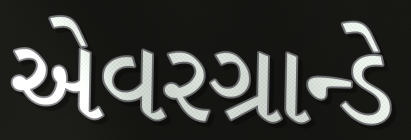
એવરગ્રાન્ડે